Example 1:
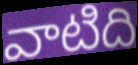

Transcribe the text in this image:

వాటిది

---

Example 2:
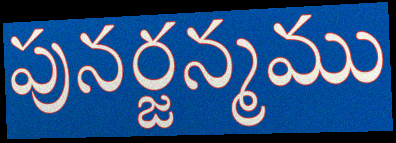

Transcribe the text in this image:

పునర్జన్మము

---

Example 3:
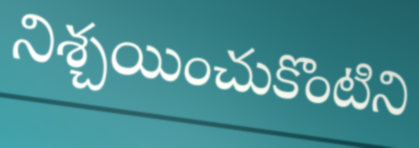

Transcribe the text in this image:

నిశ్చయించుకొంటిని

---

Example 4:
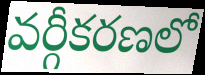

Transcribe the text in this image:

వర్గీకరణలో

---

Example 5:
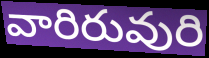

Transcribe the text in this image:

వారిరువురి